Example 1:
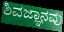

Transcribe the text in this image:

ಶಿವಜ್ಞಾನವು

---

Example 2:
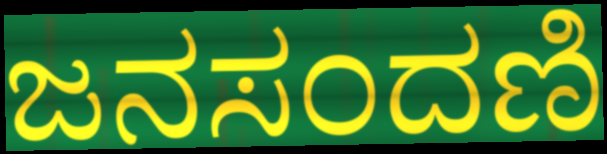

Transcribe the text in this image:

ಜನಸಂದಣಿ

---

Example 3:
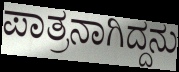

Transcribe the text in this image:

ಪಾತ್ರನಾಗಿದ್ದನು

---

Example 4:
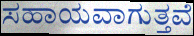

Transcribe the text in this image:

ಸಹಾಯವಾಗುತ್ತವೆ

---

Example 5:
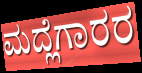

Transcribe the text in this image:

ಮದ್ಲೆಗಾರರ